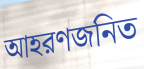
আহরণজনিত